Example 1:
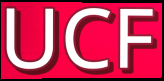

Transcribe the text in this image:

UCF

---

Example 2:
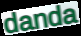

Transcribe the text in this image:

danda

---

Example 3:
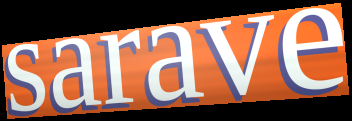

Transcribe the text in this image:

sarave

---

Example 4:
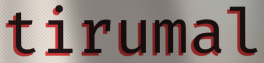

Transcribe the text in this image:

tirumal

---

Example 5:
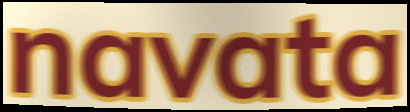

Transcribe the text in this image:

navata